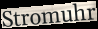
Stromuhr